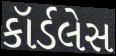
કૉર્ડલેસ